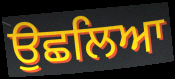
ਉਛਲਿਆ